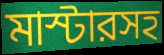
মাস্টারসহ